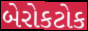
બેરોકટોક